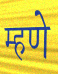
म्हणे